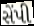
સેંપી